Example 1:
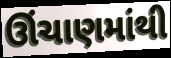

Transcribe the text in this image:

ઊંચાણમાંથી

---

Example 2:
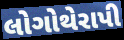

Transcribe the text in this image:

લોગોથેરાપી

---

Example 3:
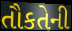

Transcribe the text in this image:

તૌકતેની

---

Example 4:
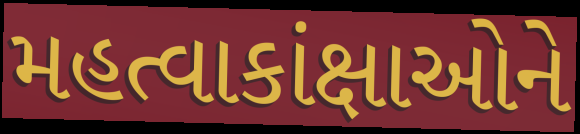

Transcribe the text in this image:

મહત્વાકાંક્ષાઓને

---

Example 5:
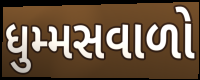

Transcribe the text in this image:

ધુમ્મસવાળો